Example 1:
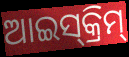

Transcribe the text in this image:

ଆଇସ୍‍କ୍ରିମ୍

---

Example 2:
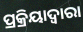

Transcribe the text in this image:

ପ୍ରକ୍ରିୟାଦ୍ଵାରା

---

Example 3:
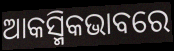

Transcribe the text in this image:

ଆକସ୍ମିକଭାବରେ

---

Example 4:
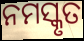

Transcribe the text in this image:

ନମସ୍କୃତ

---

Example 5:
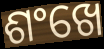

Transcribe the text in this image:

ଶଂଖେ